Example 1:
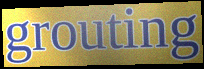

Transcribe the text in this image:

grouting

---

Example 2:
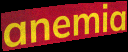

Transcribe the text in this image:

anemia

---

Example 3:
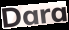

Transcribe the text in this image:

Dara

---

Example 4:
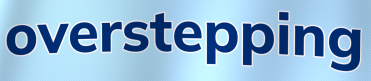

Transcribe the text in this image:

overstepping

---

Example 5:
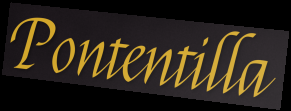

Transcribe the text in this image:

Pontentilla